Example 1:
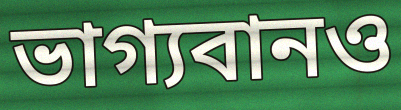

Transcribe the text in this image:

ভাগ্যবানও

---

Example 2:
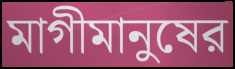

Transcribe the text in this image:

মাগীমানুষের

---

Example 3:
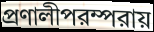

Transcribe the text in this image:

প্রণালীপরম্পরায়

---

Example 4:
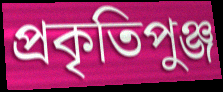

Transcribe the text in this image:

প্রকৃতিপুঞ্জ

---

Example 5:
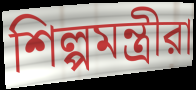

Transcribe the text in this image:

শিল্পমন্ত্রীরা